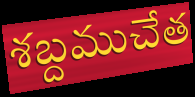
శబ్దముచేత